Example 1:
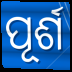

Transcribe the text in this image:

ପୂର୍ଶ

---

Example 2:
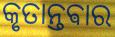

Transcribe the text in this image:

କୃତାନ୍ତଵାର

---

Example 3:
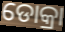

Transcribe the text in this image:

ଡୋକ୍ରା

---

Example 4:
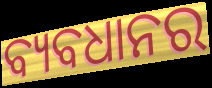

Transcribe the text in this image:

ବ୍ୟବଧାନର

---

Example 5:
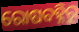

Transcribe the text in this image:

ରୋଷବହ୍ନିରୁ